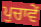
ਪੁਚਾਵੇਂ